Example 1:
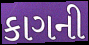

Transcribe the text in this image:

કાગની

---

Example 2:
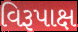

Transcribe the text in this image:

વિરૂપાક્ષ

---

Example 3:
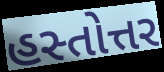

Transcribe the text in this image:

હસ્તોત્તર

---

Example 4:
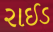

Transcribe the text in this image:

રાઈડ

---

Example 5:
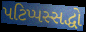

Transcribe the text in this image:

પટિપ્પસ્સદ્ધો